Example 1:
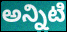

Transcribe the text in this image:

అన్నిటి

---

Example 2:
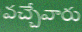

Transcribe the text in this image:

వచ్చేవారు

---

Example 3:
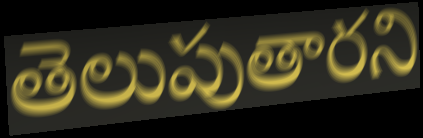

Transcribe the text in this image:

తెలుపుతారని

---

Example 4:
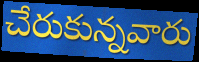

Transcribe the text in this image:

చేరుకున్నవారు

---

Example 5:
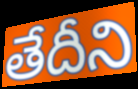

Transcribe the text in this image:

తేదీని